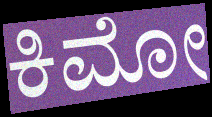
ಕಿಮೋ